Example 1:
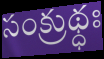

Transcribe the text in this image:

సంక్రుథ్ధః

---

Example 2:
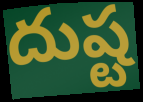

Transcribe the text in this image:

దుష్ట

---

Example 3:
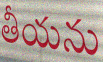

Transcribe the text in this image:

తీయను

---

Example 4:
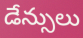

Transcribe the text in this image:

డేన్సులు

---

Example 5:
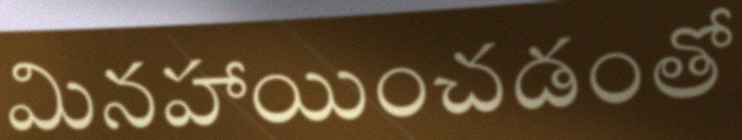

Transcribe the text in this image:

మినహాయించడంతో